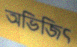
অভিজিৎ